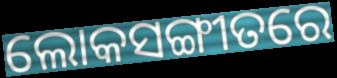
ଲୋକସଙ୍ଗୀତରେ